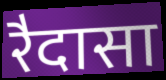
रैदासा